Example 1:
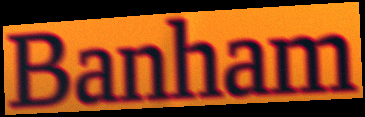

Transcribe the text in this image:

Banham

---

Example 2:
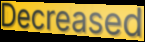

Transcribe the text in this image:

Decreased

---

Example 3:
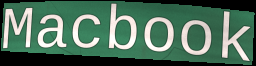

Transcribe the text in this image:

Macbook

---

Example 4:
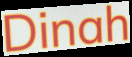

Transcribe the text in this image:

Dinah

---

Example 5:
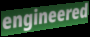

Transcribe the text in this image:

engineered